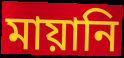
মায়ানি